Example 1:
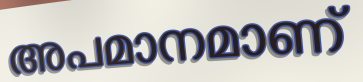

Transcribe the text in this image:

അപമാനമാണ്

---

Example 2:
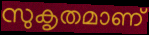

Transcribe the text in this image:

സുകൃതമാണ്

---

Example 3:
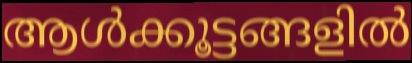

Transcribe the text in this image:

ആൾക്കൂട്ടങ്ങളിൽ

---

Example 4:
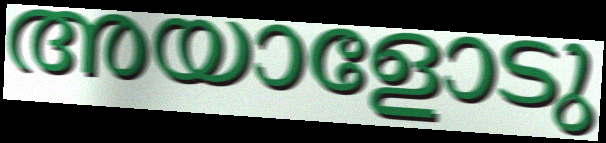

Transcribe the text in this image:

അയാളോടു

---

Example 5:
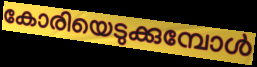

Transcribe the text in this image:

കോരിയെടുക്കുമ്പോൾ